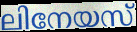
ലിനേയസ്